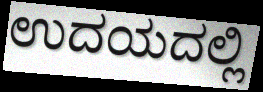
ಉದಯದಲ್ಲಿ